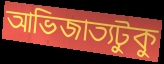
আভিজাত্যটুকু